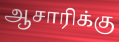
ஆசாரிக்கு